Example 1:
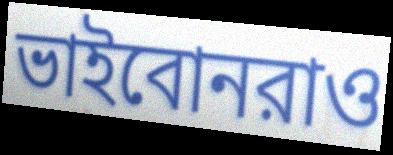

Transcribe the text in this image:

ভাইবোনরাও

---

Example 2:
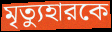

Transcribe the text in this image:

মৃত্যুহারকে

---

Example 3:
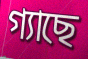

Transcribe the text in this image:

গ্যাছে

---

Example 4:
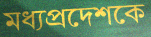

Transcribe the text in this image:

মধ্যপ্রদেশকে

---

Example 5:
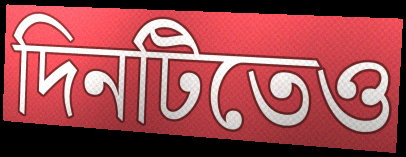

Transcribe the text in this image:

দিনটিতেও